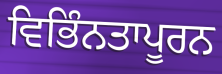
ਵਿਭਿੰਨਤਾਪੂਰਨ